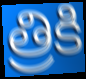
త్రికి